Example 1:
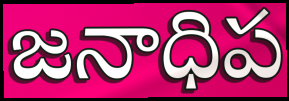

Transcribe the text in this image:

జనాధిప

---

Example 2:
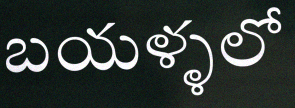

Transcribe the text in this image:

బయళ్ళలో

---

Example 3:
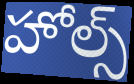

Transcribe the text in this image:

హోల్స్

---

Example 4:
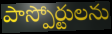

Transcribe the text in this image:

పాస్పోర్టులను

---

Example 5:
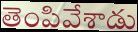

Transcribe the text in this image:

తెంపివేశాడు